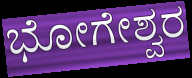
ಭೋಗೇಶ್ವರ